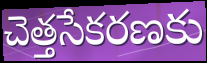
చెత్తసేకరణకు